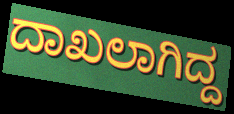
ದಾಖಲಾಗಿದ್ದ